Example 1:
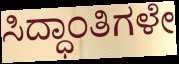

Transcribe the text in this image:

ಸಿದ್ಧಾಂತಿಗಳೇ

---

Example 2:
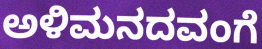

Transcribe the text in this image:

ಅಳಿಮನದವಂಗೆ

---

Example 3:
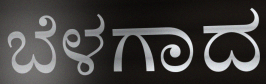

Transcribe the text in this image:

ಬೆಳಗಾದ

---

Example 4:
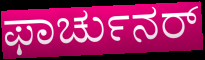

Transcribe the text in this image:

ಫಾರ್ಚುನರ್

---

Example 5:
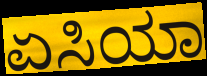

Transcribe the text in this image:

ಏಸಿಯಾ